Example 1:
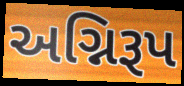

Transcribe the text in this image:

અગ્નિરૂપ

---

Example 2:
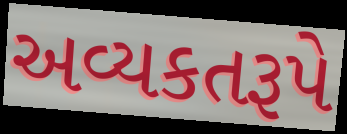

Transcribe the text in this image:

અવ્યકતરૂપે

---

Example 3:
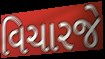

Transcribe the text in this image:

વિચારજે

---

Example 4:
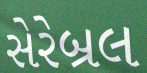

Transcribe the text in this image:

સેરેબ્રલ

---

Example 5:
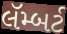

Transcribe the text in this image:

લૅમ્બર્ટ